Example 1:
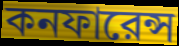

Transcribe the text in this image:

কনফারেন্স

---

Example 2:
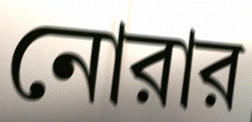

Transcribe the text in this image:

নোরার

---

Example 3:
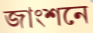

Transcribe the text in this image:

জাংশনে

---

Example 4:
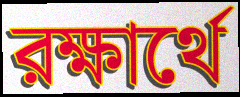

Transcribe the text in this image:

রক্ষার্থে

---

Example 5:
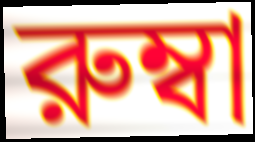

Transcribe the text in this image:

রুম্বা